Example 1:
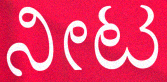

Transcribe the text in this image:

ನೀಟ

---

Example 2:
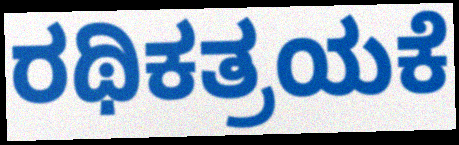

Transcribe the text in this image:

ರಥಿಕತ್ರಯಕೆ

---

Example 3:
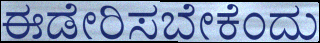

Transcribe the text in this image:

ಈಡೇರಿಸಬೇಕೆಂದು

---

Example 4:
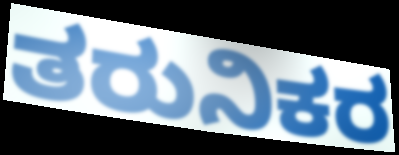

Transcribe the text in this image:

ತರುನಿಕರ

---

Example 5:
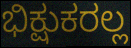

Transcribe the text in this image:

ಭಿಕ್ಷುಕರಲ್ಲ